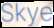
Skye